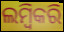
ଲମ୍ବିକରି